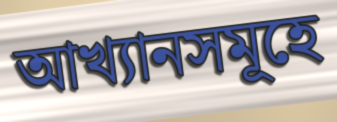
আখ্যানসমূহে